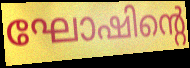
ഘോഷിന്റെ